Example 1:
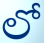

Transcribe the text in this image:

లో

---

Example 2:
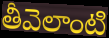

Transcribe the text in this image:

తీవెలాంటి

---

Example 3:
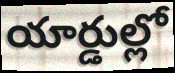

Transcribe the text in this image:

యార్డుల్లో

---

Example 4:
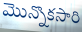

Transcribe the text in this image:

మొన్నొకసారి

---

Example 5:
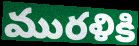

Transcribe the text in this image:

మురళికి